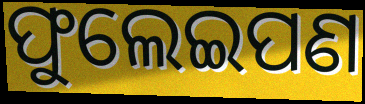
ଫୁଲେଇପଣ